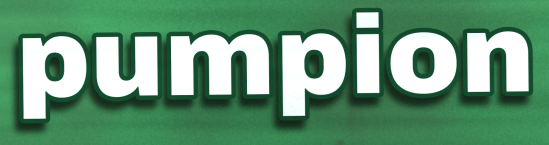
pumpion